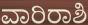
ವಾರಿರಾಶಿ